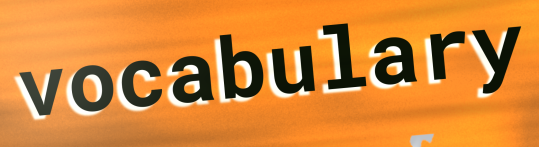
vocabulary